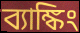
ব্যাঙ্কিং